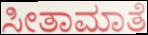
ಸೀತಾಮಾತೆ